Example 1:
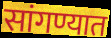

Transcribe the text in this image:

सांगण्यात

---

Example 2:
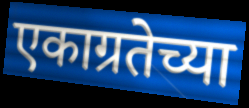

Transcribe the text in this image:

एकाग्रतेच्या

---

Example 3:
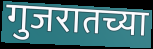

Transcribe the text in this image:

गुजरातच्या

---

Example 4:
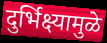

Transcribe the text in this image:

दुर्भिक्ष्यामुळे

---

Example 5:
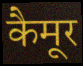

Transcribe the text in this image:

कैमूर